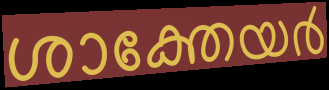
ശാക്തേയർ